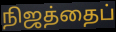
நிஜத்தைப்